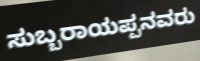
ಸುಬ್ಬರಾಯಪ್ಪನವರು